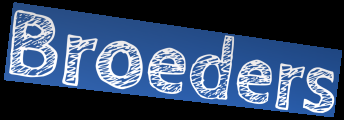
Broeders